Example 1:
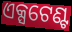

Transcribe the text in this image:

ଏକ୍ସଟେଣ୍ଟ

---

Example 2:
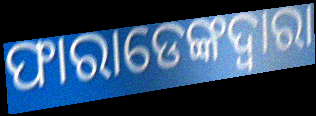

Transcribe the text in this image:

ଫାରାଡେଙ୍କଦ୍ୱାରା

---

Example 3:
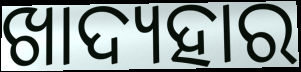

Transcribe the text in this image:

ଖାଦ୍ୟହାର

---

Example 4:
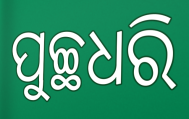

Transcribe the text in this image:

ପୁଚ୍ଛଧରି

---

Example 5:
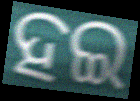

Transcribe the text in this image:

ହଇ